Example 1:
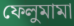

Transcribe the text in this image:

ফেলুমামা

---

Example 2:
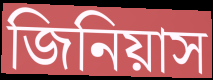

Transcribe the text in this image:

জিনিয়াস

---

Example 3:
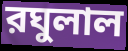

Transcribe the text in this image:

রঘুলাল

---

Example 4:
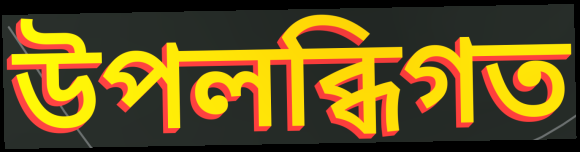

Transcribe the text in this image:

উপলব্ধিগত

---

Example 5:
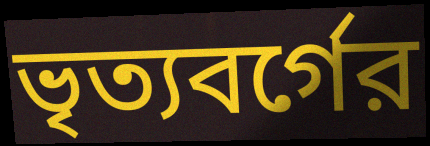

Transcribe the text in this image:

ভৃত্যবর্গের